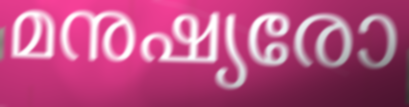
മനുഷ്യരോ